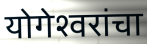
योगेश्वरांचा